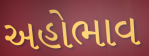
અહોભાવ